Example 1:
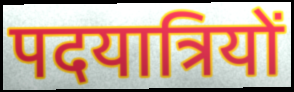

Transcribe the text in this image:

पदयात्रियों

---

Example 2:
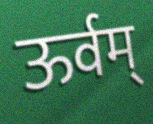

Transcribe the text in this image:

ऊर्वम्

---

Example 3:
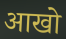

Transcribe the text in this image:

आखो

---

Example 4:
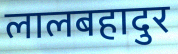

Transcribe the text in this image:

लालबहादुर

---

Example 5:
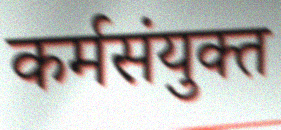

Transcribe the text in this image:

कर्मसंयुक्त